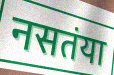
नसतंया